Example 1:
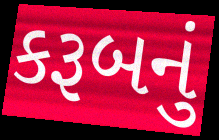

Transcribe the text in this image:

કરૂબનું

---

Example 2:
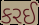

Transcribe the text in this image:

કરઈ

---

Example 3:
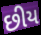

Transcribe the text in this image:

છીય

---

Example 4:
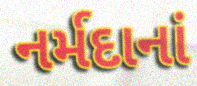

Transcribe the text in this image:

નર્મદાનાં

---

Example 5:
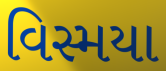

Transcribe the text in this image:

વિસ્મયા